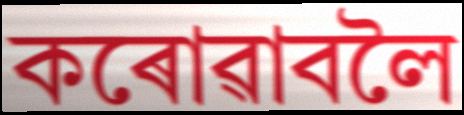
কৰোৱাবলৈ